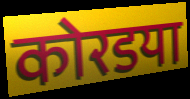
कोरडया